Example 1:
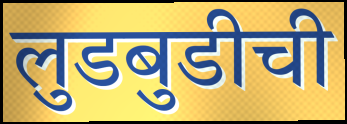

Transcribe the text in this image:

लुडबुडीची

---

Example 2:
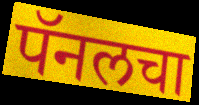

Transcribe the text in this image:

पॅनलचा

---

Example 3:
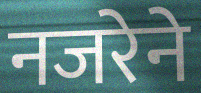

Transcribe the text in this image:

नजरेने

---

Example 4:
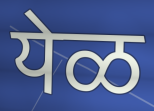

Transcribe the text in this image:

येळ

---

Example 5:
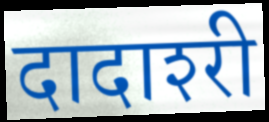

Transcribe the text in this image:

दादाश्री